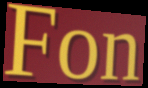
Fon